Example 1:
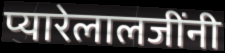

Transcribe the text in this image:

प्यारेलालजींनी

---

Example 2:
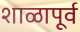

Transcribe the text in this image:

शाळापूर्व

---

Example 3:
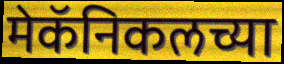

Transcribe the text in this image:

मेकॅनिकलच्या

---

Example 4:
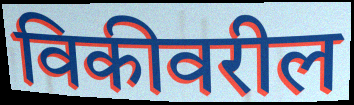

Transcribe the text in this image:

विकीवरील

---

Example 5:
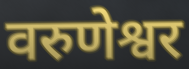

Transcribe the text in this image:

वरुणेश्वर